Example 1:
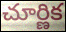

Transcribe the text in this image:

చూర్ణిక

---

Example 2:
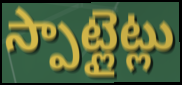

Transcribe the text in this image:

స్పాట్లైట్లు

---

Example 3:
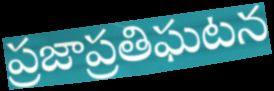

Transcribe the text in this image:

ప్రజాప్రతిఘటన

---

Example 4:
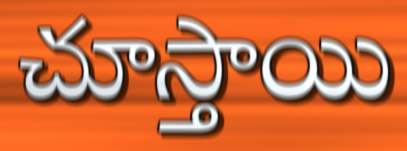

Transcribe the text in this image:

చూస్తాయి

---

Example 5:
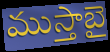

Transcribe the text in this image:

ముస్తాబై